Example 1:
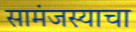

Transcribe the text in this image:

सामंजस्याचा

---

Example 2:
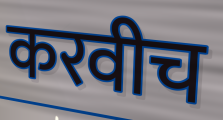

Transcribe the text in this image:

करवीच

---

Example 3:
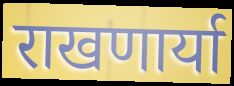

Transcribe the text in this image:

राखणार्या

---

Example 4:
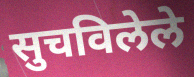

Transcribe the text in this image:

सुचविलेले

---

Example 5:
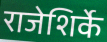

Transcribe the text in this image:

राजेशिर्के